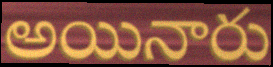
అయినారు